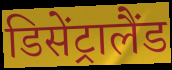
डिसेंट्रालैंड